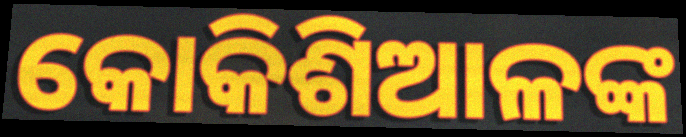
କୋକିଶିଆଳଙ୍କ